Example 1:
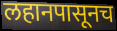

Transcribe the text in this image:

लहानपासूनच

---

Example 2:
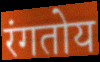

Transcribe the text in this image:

रंगतोय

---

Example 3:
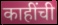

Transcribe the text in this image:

काहींची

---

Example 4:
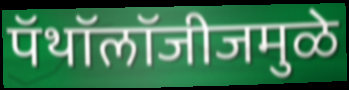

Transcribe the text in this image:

पॅथॉलॉजीजमुळे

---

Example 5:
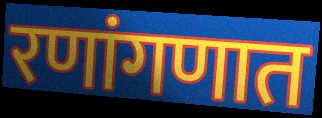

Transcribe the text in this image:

रणांगणात